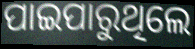
ପାଇପାରୁଥିଲେ